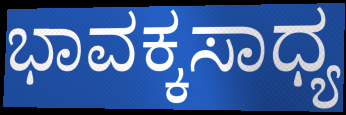
ಭಾವಕ್ಕಸಾಧ್ಯ